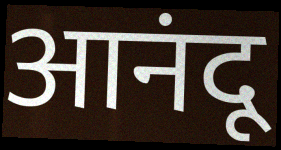
आनंदू